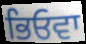
ਭਿਓਵਾ